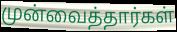
முன்வைத்தார்கள்